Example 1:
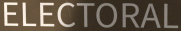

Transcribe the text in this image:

ELECTORAL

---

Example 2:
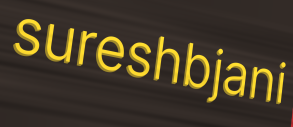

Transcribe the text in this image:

sureshbjani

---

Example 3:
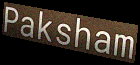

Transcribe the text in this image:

Paksham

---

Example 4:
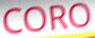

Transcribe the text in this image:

CORO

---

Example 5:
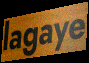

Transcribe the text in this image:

lagaye